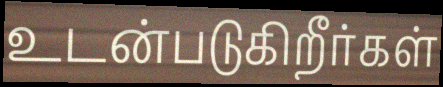
உடன்படுகிறீர்கள்